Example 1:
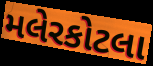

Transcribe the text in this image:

મલેરકોટલા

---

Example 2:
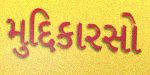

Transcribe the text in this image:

મુદ્દિકારસો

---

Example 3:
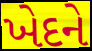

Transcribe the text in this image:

ખેદને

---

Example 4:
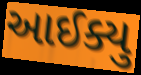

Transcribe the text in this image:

આઈક્યુ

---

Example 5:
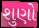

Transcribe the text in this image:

શુણો